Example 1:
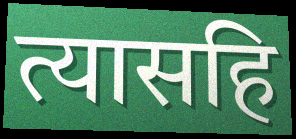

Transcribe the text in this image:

त्यासहि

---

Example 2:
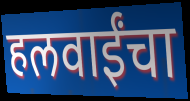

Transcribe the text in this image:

हलवाईंचा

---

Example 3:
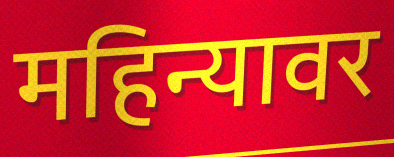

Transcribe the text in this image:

महिन्यावर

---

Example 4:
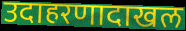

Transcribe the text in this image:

उदाहरणादाखल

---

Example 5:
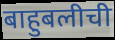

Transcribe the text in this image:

बाहुबलीची